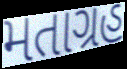
મતાગ્રહ